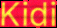
Kidi